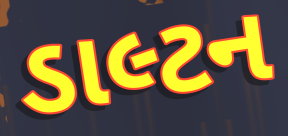
ડાલ્ટન